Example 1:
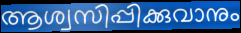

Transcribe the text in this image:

ആശ്വസിപ്പിക്കുവാനും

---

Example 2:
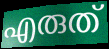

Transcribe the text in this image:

എരുത്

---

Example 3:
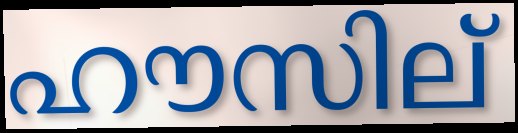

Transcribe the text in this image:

ഹൗസില്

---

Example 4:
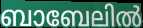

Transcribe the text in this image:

ബാബേലിൽ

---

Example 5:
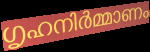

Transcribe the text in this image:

ഗൃഹനിർമ്മാണം